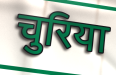
चुरिया